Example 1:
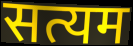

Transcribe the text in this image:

सत्यम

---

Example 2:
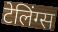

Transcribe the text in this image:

टेलिंग्स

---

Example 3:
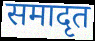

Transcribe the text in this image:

समादृत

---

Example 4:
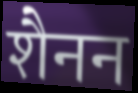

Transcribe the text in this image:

शैनन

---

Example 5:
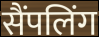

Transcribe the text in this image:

सैंपलिंग